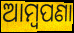
ଆମ୍ବପଣା